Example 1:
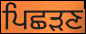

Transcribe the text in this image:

ਪਿਛੜਣ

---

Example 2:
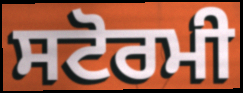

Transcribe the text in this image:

ਸਟੋਰਮੀ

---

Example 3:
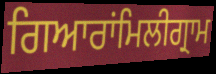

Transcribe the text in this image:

ਗਿਆਰਾਂਮਿਲੀਗ੍ਰਾਮ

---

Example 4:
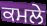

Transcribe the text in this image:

ਕਮਲੇ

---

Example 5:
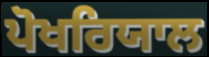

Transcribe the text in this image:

ਪੋਖਰਿਯਾਲ